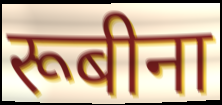
रूबीना